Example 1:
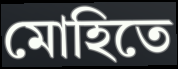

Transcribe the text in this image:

মোহিতে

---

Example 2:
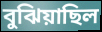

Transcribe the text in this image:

বুঝিয়াছিল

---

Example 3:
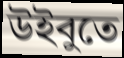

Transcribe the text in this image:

উইবুতে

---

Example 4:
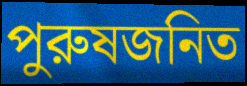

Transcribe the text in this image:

পুরুষজনিত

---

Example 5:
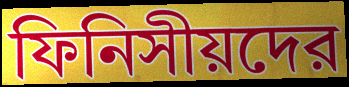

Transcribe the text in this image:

ফিনিসীয়দের